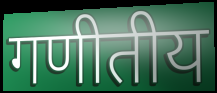
गणीतीय